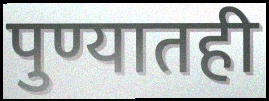
पुण्यातही